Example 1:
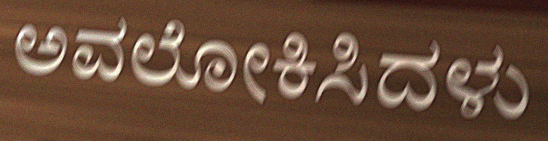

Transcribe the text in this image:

ಅವಲೋಕಿಸಿದಳು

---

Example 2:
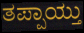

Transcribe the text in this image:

ತಪ್ಪಾಯ್ತು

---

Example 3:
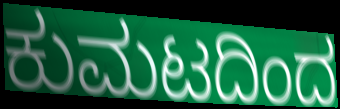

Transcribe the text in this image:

ಕುಮಟದಿಂದ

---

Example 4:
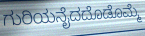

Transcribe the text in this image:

ಗುರಿಯನೈದದೊಡೊಮ್ಮೆ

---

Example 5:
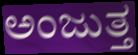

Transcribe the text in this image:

ಅಂಜುತ್ತ